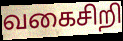
வகைசிறி